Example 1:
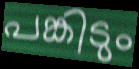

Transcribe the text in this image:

പങ്കിടും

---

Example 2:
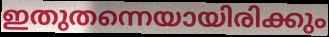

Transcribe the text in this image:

ഇതുതന്നെയായിരിക്കും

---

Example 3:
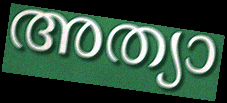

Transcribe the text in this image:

അത്യാ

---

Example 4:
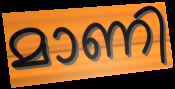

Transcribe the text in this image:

മാണി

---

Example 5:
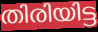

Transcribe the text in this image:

തിരിയിട്ട